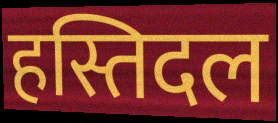
हस्तिदल